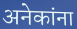
अनेकांना